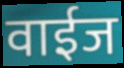
वाईज